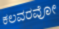
ಕಲವರವೋ